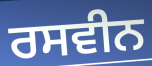
ਰਸਵੀਨ